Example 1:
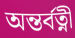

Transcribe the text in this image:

অন্তর্বত্নী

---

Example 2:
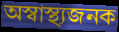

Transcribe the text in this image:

অস্বাস্থ্যজনক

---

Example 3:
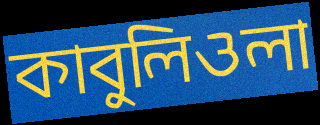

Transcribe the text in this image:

কাবুলিওলা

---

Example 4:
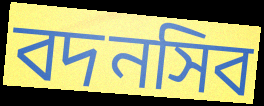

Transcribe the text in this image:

বদনসিব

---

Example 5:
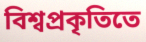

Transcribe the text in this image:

বিশ্বপ্রকৃতিতে